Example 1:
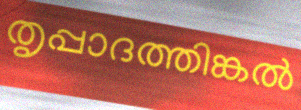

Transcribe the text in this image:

തൃപ്പാദത്തിങ്കൽ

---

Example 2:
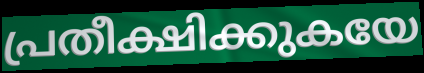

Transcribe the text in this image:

പ്രതീക്ഷിക്കുകയേ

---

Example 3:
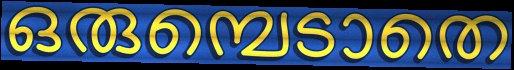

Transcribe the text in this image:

ഒരുമ്പെടാതെ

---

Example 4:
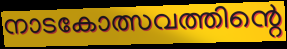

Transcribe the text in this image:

നാടകോത്സവത്തിന്റെ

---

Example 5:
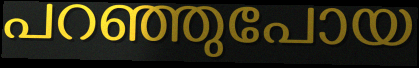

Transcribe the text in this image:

പറഞ്ഞുപോയ